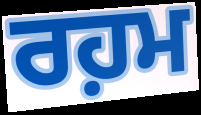
ਰਹ਼ਮ